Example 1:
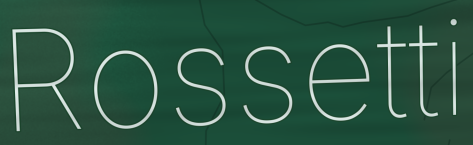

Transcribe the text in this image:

Rossetti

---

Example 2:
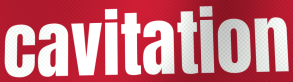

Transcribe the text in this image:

cavitation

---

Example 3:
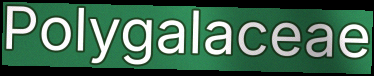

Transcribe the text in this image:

Polygalaceae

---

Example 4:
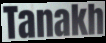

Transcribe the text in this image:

Tanakh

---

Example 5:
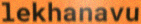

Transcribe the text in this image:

lekhanavu